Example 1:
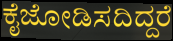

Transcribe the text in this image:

ಕೈಜೋಡಿಸದಿದ್ದರೆ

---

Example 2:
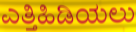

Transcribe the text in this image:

ಎತ್ತಿಹಿಡಿಯಲು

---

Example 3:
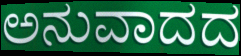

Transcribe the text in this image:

ಅನುವಾದದ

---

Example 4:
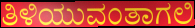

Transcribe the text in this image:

ತಿಳಿಯುವಂತಾಗಲಿ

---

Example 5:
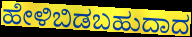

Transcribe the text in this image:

ಹೇಳಿಬಿಡಬಹುದಾದ